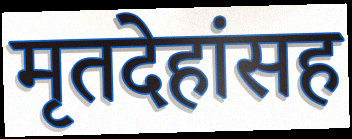
मृतदेहांसह